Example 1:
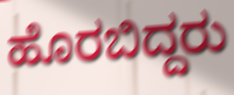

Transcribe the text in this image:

ಹೊರಬಿದ್ದರು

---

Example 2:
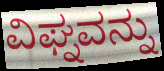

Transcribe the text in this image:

ವಿಘ್ನವನ್ನು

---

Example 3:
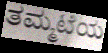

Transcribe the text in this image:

ತಮ್ಮಟೆಯ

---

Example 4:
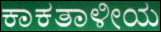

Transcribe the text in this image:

ಕಾಕತಾಳೀಯ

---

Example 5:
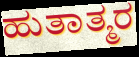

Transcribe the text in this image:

ಹುತಾತ್ಮರ